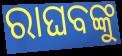
ରାଘବଙ୍କୁ